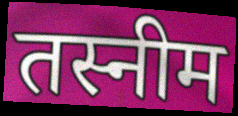
तस्नीम